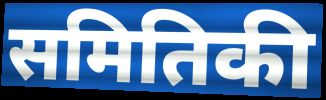
समितिकी